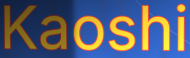
Kaoshi